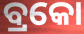
ବ୍ରକୋ